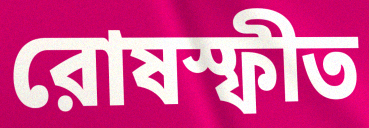
রোষস্ফীত